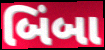
બિંબા